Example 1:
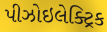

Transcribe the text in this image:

પીઝોઇલેક્ટ્રિક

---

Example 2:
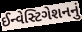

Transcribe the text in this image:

ઈન્વેસ્ટિગેશનનું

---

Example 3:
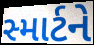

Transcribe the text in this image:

સ્માર્ટને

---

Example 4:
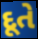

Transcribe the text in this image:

દૂતે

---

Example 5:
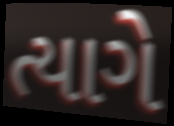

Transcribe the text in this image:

ત્યાગે